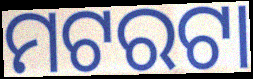
ମଟରଟା